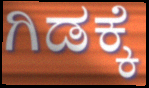
ಗಿಡಕ್ಕೆ